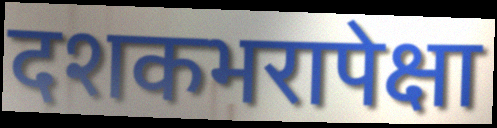
दशकभरापेक्षा